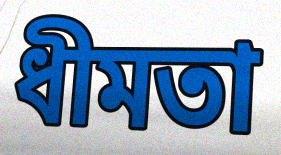
ধীমতা